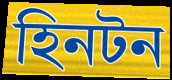
হিনটন